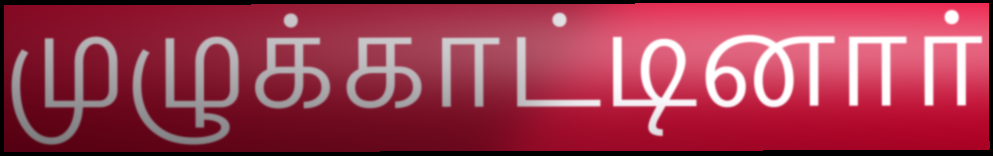
முழுக்காட்டினார்